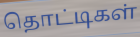
தொட்டிகள்